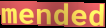
mended